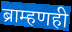
ब्राम्हणही